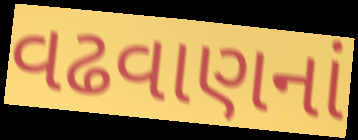
વઢવાણનાં